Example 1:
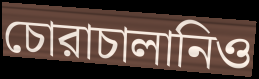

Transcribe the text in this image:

চোরাচালানিও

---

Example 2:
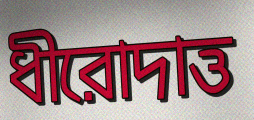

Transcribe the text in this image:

ধীরোদাত্ত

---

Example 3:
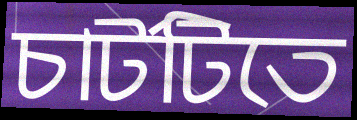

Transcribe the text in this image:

চার্টটিতে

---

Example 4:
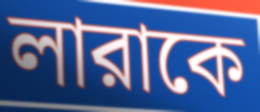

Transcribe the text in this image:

লারাকে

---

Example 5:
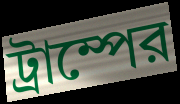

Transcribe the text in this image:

ট্রাম্পের